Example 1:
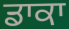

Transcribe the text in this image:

ਡਾਕਾ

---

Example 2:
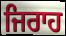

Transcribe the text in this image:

ਜਿਰਾਹ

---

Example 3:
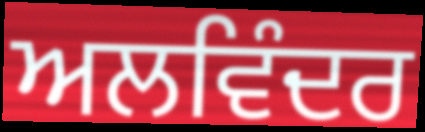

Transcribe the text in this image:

ਅਲਵਿੰਦਰ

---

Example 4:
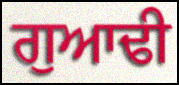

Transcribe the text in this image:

ਗੁਆਢੀ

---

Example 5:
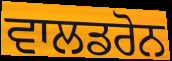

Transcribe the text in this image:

ਵਾਲਡਰੋਨ